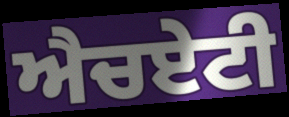
ਐਚਏਟੀ